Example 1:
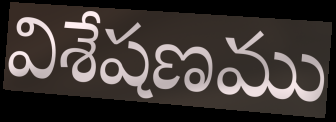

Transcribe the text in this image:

విశేషణము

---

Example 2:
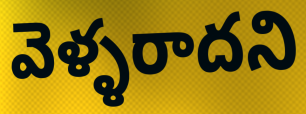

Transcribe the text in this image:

వెళ్ళరాదని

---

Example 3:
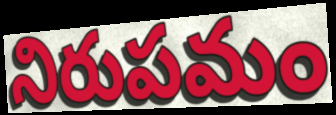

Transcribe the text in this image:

నిరుపమం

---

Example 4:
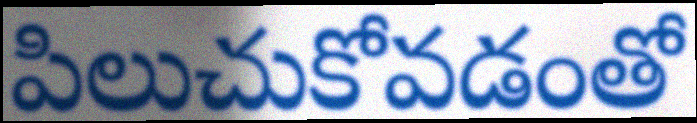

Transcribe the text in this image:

పిలుచుకోవడంతో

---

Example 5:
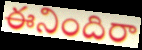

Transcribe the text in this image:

ఈనిందిరా